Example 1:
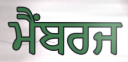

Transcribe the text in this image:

ਮੈਂਬਰਜ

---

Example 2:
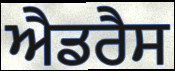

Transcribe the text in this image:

ਐਡਰੈਸ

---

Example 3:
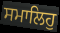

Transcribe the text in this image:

ਸਮਾਲਿਹੁ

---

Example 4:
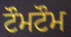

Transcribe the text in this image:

ਟੌਮਟੌਮ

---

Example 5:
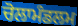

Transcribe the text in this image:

ਚੋਲਾਮੰਡਲਮ